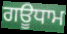
ਗਊਧਾਮ